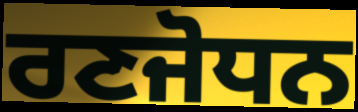
ਰਣਜੋਧਨ